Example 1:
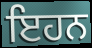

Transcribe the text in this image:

ਇਹਨ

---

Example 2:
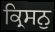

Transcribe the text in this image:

ਕ੍ਰਿਸਨੁ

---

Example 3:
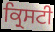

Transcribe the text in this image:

ਕ੍ਰਿਸਟੀ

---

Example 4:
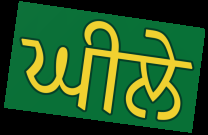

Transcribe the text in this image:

ਘੀਲੇ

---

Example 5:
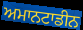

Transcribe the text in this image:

ਅਮਾਨਟਾਡੀਨ